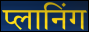
प्लानिंग